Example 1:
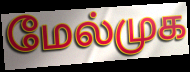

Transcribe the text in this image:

மேல்முக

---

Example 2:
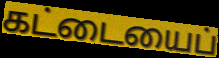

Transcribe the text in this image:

கட்டையைப்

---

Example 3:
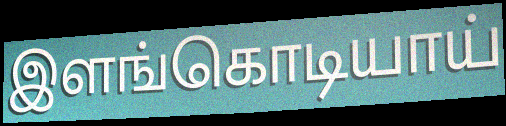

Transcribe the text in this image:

இளங்கொடியாய்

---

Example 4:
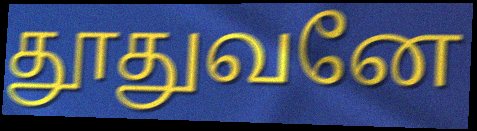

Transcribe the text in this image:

தூதுவனே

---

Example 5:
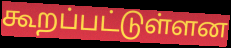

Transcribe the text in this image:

கூறப்பட்டுள்ளன